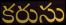
కరుసు